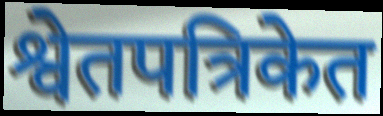
श्वेतपत्रिकेत